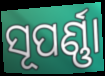
ସୂପର୍ଣ୍ଣା